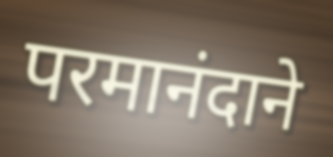
परमानंदाने